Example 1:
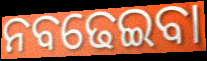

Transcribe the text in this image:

ନବଢେଇବା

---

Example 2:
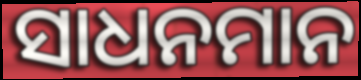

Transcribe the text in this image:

ସାଧନମାନ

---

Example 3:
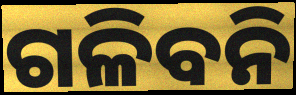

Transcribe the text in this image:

ଗଳିବନି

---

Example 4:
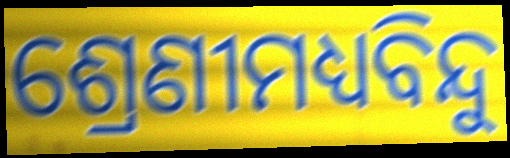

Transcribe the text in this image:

ଶ୍ରେଣୀମଧ୍ୟବିନ୍ଦୁ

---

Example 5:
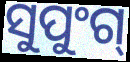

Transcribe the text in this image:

ସୁପୁଂଗ୍